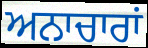
ਅਨਾਚਾਰਾਂ